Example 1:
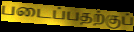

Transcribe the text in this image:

படைப்பதற்குப்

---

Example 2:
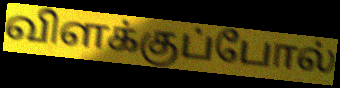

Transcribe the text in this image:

விளக்குப்போல்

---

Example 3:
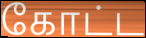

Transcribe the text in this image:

கோட்ட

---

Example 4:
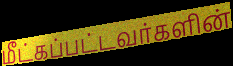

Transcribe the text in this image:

மீட்கப்பட்டவர்களின்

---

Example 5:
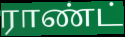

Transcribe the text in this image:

ராண்ட்